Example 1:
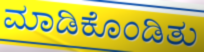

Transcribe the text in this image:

ಮಾಡಿಕೊಂಡಿತು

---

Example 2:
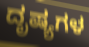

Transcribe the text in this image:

ದೃಷ್ಯಗಳ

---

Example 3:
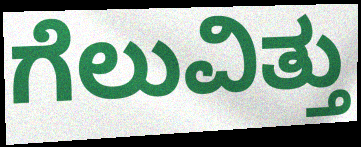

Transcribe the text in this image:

ಗೆಲುವಿತ್ತು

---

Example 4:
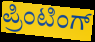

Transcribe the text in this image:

ಪ್ರಿಂಟಿಂಗ್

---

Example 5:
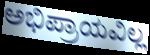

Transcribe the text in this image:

ಅಭಿಪ್ರಾಯವಿಲ್ಲ